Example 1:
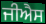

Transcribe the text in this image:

ਜੀਐਸ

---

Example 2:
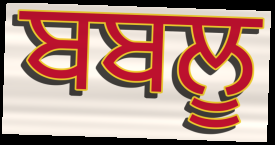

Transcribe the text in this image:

ਬਬਲੂ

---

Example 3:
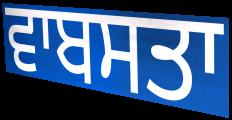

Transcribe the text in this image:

ਵਾਬਸਤਾ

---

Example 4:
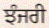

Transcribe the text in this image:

ਝੰਜਰੀ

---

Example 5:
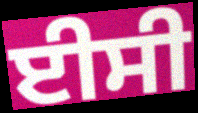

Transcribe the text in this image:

ਈਸੀ